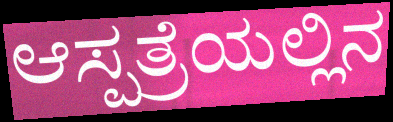
ಆಸ್ಪತ್ರೆಯಲ್ಲಿನ